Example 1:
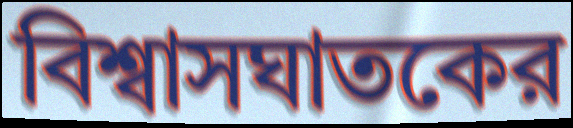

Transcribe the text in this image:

বিশ্বাসঘাতকের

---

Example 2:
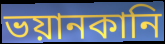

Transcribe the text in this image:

ভয়ানকানি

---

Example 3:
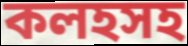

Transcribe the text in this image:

কলহসহ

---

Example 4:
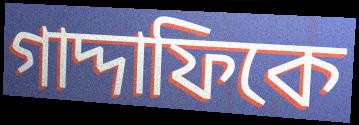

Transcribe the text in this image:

গাদ্দাফিকে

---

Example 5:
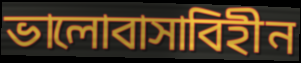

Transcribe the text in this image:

ভালোবাসাবিহীন